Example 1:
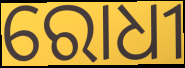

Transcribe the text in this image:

ରୋଧୀ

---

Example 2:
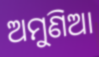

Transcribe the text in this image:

ଅମୁଣିଆ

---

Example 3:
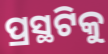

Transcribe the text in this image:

ପ୍ରସ୍ଥଟିକୁ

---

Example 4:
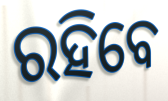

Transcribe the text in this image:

ରହିବେ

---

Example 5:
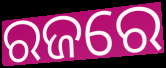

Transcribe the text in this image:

ରଜରେ